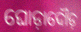
ଘୋଡ଼ାଦୌଡ଼